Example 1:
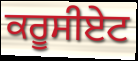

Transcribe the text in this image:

ਕਰੂਸੀਏਟ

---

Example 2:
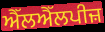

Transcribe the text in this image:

ਐੱਲਐੱਲਪੀਜ਼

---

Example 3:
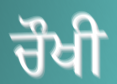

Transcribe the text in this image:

ਚੌਖੀ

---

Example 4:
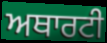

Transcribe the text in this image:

ਅਥਾਰਟੀ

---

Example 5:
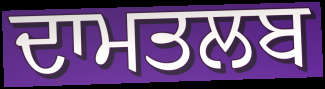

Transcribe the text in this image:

ਦਾਮਤਲਬ